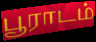
பூராடம்